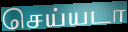
செய்யடா